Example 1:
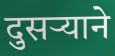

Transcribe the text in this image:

दुसऱ्याने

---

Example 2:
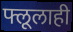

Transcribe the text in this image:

फ्लूलाही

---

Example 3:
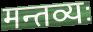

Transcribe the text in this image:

मन्तव्यः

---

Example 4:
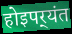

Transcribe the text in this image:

होइपर्यंत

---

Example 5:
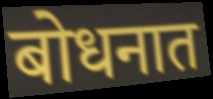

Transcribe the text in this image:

बोधनात